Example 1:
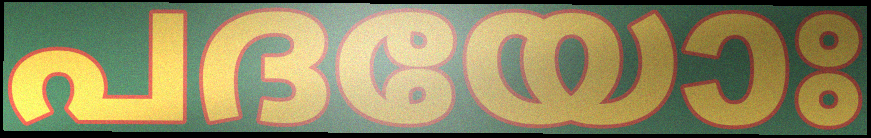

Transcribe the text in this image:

പദയോഃ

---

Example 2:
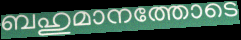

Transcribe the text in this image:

ബഹുമാനത്തോടെ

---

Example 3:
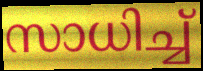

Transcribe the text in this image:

സാധിച്ച്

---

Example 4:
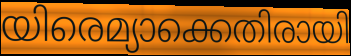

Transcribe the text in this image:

യിരെമ്യാക്കെതിരായി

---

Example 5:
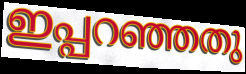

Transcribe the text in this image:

ഇപ്പറഞ്ഞതു